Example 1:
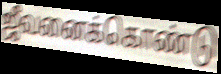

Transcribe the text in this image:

ஜீவனைக்கொண்டு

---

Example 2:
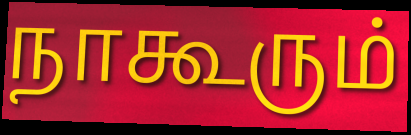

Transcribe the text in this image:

நாகூரும்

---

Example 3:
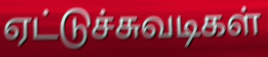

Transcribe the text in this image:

ஏட்டுச்சுவடிகள்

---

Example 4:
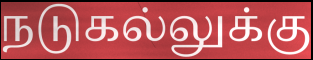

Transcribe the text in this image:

நடுகல்லுக்கு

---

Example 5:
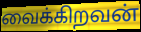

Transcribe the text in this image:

வைக்கிறவன்